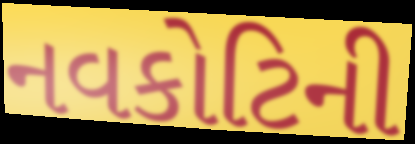
નવકોટિની